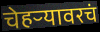
चेहऱ्यावरचं